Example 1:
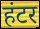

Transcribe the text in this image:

हंटर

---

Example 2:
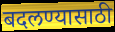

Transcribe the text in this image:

बदलण्यासाठी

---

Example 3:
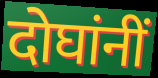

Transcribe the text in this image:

दोघांनीं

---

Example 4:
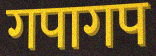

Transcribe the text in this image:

गपागप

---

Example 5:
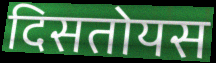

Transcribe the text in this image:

दिसतोयस